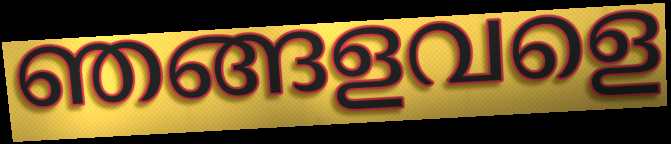
ഞങ്ങളവളെ